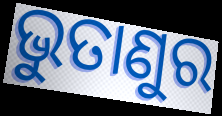
ଭୁତାଣୁର